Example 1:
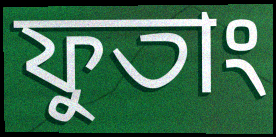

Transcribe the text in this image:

ফুতাং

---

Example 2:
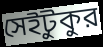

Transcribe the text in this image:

সেইটুকুর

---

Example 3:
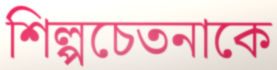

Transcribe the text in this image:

শিল্পচেতনাকে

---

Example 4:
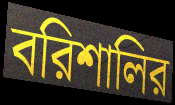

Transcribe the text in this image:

বরিশালির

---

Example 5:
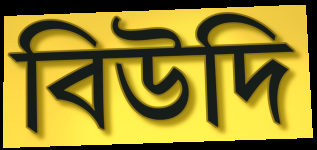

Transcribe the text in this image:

বিউদি